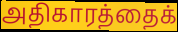
அதிகாரத்தைக்